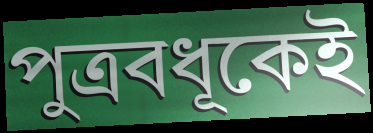
পুত্রবধূকেই